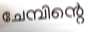
ചേമ്പിന്റെ